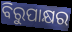
ବିରୁପାକ୍ଷର